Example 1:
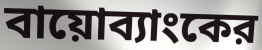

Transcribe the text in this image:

বায়োব্যাংকের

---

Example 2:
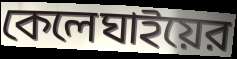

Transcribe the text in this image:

কেলেঘাইয়ের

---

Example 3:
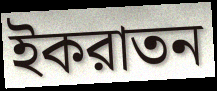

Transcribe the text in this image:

ইকরাতন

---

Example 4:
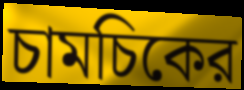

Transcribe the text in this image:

চামচিকের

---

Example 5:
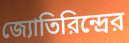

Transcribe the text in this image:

জ্যোতিরিন্দ্রের